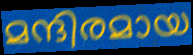
മന്ദിരമായ